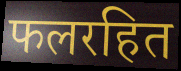
फलरहित